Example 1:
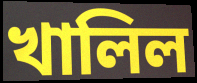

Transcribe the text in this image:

খালিল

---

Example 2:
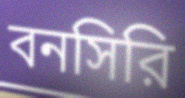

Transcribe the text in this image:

বনসিরি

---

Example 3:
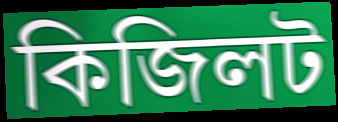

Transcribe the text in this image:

কিজিলট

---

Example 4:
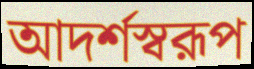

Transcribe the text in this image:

আদর্শস্বরূপ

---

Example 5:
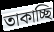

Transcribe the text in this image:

তাকাচ্ছি